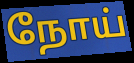
நோய்